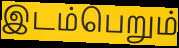
இடம்பெறும்